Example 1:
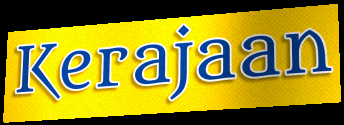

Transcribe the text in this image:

Kerajaan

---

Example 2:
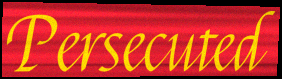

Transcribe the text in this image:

Persecuted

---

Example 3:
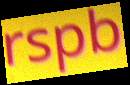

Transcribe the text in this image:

rspb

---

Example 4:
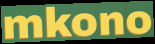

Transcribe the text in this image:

mkono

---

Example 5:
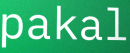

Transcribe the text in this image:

pakal